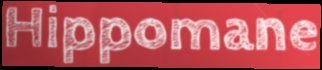
Hippomane